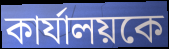
কার্যালয়কে